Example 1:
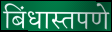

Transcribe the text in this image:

बिंधास्तपणे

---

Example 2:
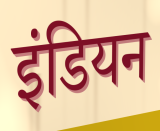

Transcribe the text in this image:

इंडियन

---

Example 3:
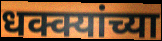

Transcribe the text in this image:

धक्क्यांच्या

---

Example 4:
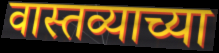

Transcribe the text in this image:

वास्तव्याच्या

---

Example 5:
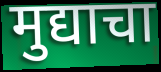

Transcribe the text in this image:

मुद्याचा